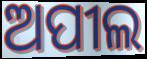
ଅପୀଲ